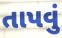
તાપવું